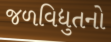
જળવિદ્યુતનો